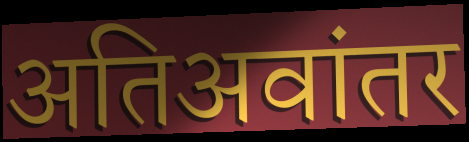
अतिअवांतर